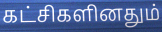
கட்சிகளினதும்